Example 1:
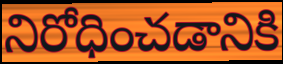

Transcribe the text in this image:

నిరోధించడానికి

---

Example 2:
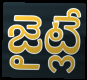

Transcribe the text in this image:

జైట్లే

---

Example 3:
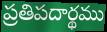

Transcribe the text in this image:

ప్రతిపదార్థము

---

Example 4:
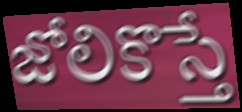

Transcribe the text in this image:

జోలికొస్తే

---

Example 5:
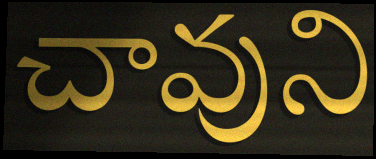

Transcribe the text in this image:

చావుని